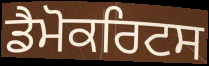
ਡੈਮੋਕਰਿਟਸ